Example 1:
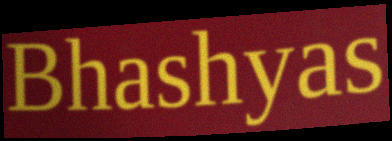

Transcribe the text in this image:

Bhashyas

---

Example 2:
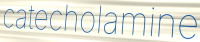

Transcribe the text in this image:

catecholamine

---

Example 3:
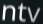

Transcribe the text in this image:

ntv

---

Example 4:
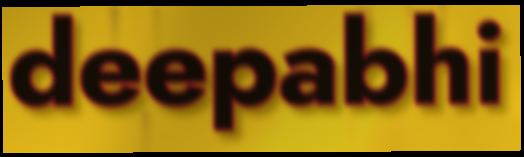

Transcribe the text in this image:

deepabhi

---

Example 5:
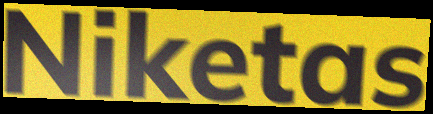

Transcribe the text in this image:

Niketas